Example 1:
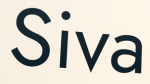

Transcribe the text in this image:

Siva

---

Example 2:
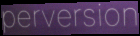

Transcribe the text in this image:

perversion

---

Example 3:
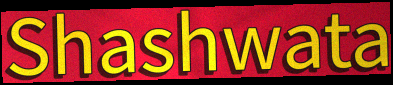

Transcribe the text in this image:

Shashwata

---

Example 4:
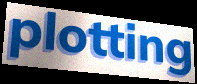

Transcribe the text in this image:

plotting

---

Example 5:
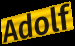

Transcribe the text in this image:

Adolf